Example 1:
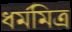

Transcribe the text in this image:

ধর্মমিত্র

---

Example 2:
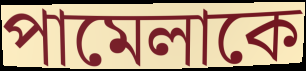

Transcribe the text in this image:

পামেলাকে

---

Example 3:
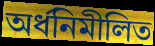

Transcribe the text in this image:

অর্ধনিমীলিত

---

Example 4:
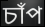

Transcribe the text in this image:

চাঁপ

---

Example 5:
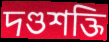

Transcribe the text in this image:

দণ্ডশক্তি